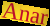
Anar